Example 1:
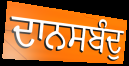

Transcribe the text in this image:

ਦਾਨਸਬੰਦੁ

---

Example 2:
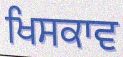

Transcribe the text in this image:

ਖਿਸਕਾਵ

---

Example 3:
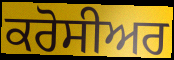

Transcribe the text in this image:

ਕਰੋਸੀਅਰ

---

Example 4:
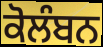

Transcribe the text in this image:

ਕੋਲੰਬਨ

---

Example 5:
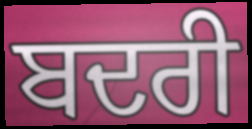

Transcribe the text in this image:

ਬਦਰੀ